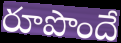
రూపొందే